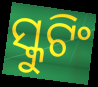
ସ୍କୁଟିଂ